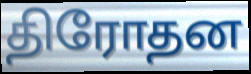
திரோதன